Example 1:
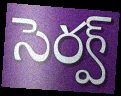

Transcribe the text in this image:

సెర్వ్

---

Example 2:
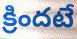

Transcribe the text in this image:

క్రిందటే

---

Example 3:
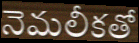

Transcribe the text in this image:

నెమలీకతో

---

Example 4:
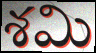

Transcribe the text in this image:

శమి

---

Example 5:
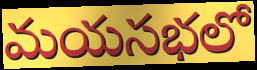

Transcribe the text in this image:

మయసభలో